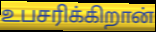
உபசரிக்கிறான்